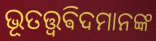
ଭୂତତ୍ତ୍ୱଵିଦମାନଙ୍କ